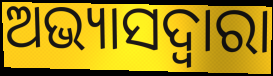
ଅଭ୍ୟାସଦ୍ୱାରା